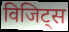
विजिट्स